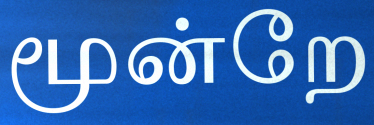
மூன்றே